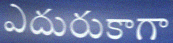
ఎదురుకాగా